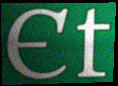
Et